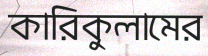
কারিকুলামের